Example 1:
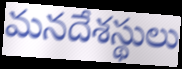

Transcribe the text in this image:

మనదేశస్థులు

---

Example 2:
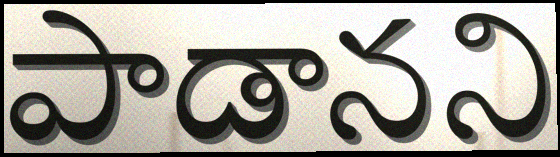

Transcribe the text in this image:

పాడానని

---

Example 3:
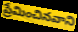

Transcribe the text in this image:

ప్రేమించినవాని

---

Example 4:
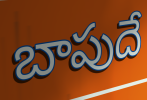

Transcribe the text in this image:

బాపుదే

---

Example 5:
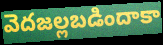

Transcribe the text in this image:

వెదజల్లబడిందాకా